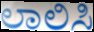
ಲಾಲಿಸಿ